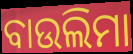
ବାଉଲିମା